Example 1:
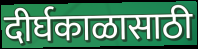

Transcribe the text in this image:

दीर्घकाळासाठी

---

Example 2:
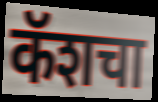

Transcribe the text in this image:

कॅशचा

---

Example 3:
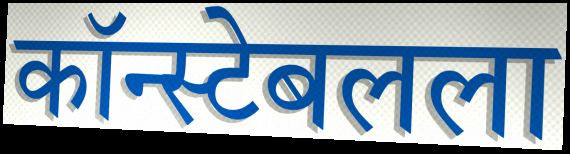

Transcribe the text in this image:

कॉन्स्टेबलला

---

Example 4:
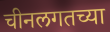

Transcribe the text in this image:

चीनलगतच्या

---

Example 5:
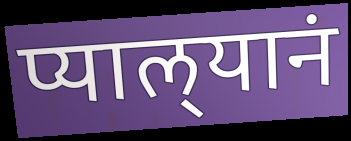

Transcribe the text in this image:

प्याल्यानं